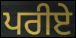
ਪਰੀਏ